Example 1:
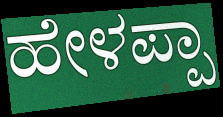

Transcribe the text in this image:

ಹೇಳಪ್ಪಾ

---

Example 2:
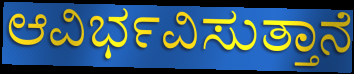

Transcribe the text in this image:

ಆವಿರ್ಭವಿಸುತ್ತಾನೆ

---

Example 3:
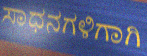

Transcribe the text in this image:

ಸಾಧನಗಳಿಗಾಗಿ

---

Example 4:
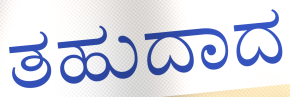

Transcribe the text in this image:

ತಹುದಾದ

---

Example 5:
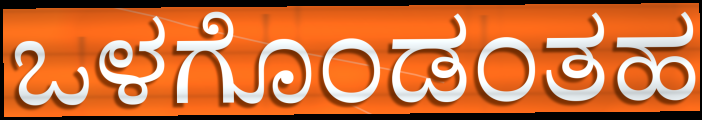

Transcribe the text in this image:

ಒಳಗೊಂಡಂತಹ